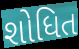
શોધિત